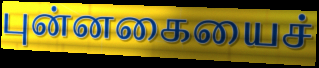
புன்னகையைச்